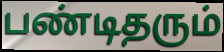
பண்டிதரும்